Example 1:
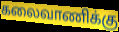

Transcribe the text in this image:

கலைவாணிக்கு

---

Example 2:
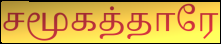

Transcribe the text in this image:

சமூகத்தாரே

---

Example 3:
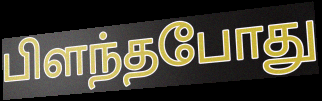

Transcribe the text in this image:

பிளந்தபோது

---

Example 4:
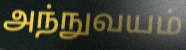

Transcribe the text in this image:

அந்நுவயம்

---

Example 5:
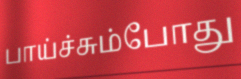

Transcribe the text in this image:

பாய்ச்சும்போது